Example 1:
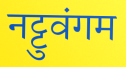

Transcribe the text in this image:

नट्टुवंगम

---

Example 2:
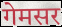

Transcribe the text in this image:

गेमसर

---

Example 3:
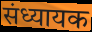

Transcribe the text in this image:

संध्यायक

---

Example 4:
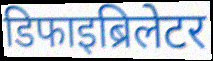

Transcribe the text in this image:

डिफाइब्रिलेटर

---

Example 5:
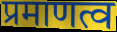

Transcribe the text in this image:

प्रमाणत्व